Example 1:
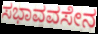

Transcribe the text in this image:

ಸಭಾವವಸೇನ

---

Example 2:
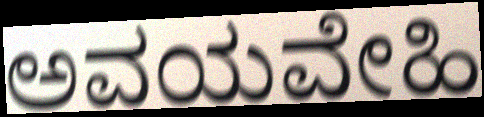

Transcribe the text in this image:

ಅವಯವೇಹಿ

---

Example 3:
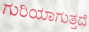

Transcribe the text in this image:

ಗುರಿಯಾಗುತ್ತದೆ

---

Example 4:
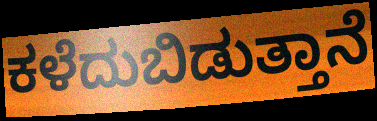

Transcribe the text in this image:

ಕಳೆದುಬಿಡುತ್ತಾನೆ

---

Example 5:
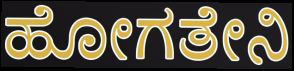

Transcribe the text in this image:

ಹೋಗತೇನಿ